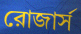
রোজার্স